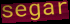
segar